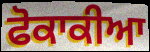
ਫੋਕਾਕੀਆ